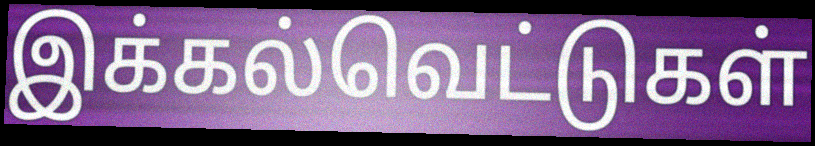
இக்கல்வெட்டுகள்